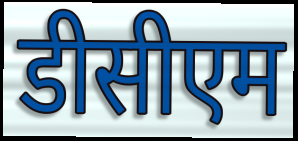
डीसीएम